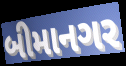
બીમાનગર